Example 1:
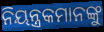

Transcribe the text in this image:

ନିୟନ୍ତ୍ରକମାନଙ୍କୁ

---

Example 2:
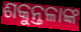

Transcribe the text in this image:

ଶକୁନ୍ତଳାଙ୍କ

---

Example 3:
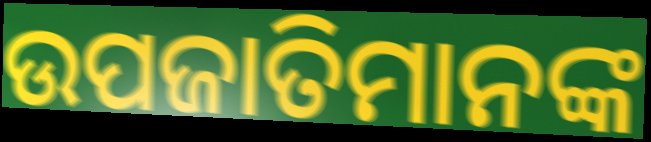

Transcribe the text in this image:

ଉପଜାତିମାନଙ୍କ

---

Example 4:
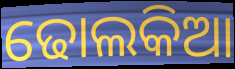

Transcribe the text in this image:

ଢୋଲକିଆ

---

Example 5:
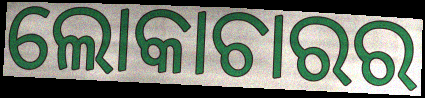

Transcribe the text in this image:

ଲୋକାଚାରର